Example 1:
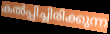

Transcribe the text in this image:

കൽപ്പിച്ചിരിക്കുന്ന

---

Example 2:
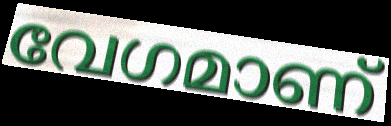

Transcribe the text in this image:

വേഗമാണ്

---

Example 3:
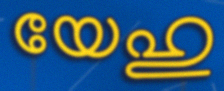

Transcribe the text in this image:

യേഹു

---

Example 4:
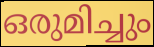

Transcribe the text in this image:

ഒരുമിച്ചും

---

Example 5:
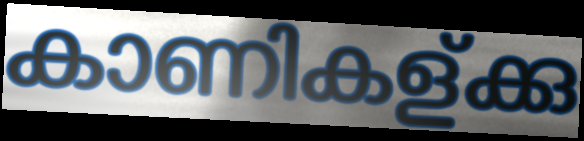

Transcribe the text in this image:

കാണികള്ക്കു